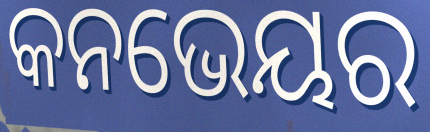
କନଭେୟର